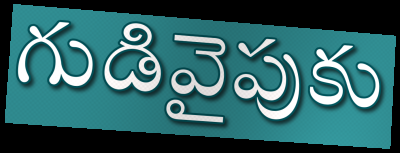
గుడివైపుకు